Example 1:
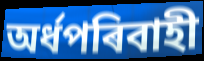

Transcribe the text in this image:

অৰ্ধপৰিবাহী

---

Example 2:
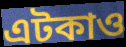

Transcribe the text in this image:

এটকাও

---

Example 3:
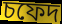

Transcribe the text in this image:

চফেদ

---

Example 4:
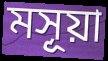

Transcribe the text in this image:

মসূয়া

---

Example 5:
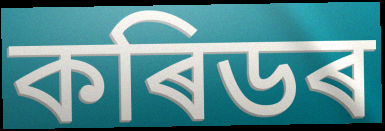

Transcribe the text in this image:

কৰিডৰ